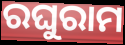
ରଘୁରାମ